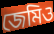
জেমিও